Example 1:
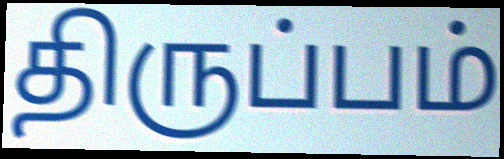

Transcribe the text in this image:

திருப்பம்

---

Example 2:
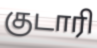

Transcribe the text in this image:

குடாரி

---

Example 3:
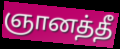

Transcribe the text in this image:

ஞானத்தீ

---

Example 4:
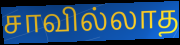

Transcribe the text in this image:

சாவில்லாத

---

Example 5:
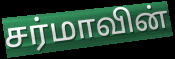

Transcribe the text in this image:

சர்மாவின்